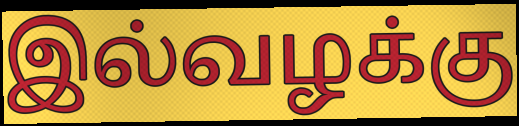
இல்வழக்கு